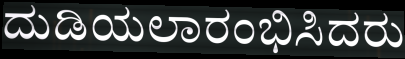
ದುಡಿಯಲಾರಂಭಿಸಿದರು